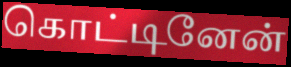
கொட்டினேன்